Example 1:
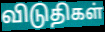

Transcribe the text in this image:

விடுதிகள்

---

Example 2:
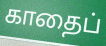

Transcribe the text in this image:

காதைப்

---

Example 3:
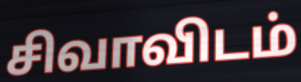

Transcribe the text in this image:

சிவாவிடம்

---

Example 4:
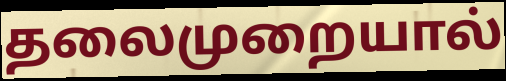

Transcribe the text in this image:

தலைமுறையால்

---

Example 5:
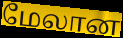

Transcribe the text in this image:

மேலான